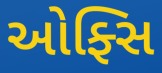
ઓફ્સિ